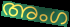
അംഗ